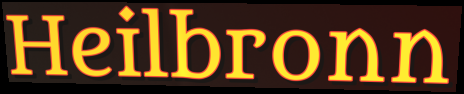
Heilbronn